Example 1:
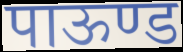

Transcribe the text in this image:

पाऊण्ड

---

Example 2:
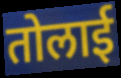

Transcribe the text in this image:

तोलाई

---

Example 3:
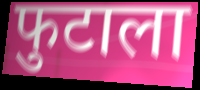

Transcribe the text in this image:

फुटाला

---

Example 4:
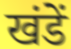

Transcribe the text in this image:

खंडें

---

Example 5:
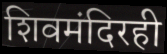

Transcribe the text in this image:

शिवमंदिरही